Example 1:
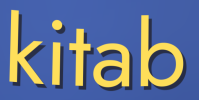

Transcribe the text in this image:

kitab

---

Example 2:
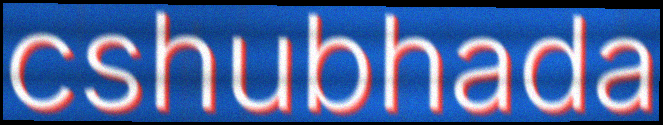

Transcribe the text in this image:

cshubhada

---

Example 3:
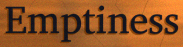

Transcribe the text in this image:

Emptiness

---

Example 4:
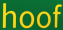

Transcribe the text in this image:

hoof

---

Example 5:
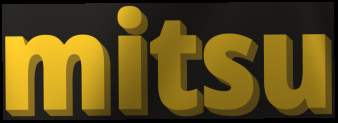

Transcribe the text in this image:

mitsu